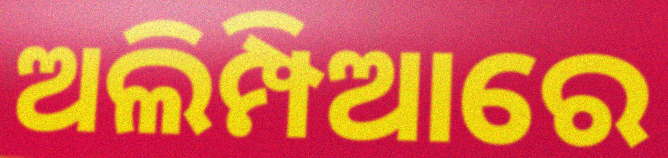
ଅଲିମ୍ପିଆରେ